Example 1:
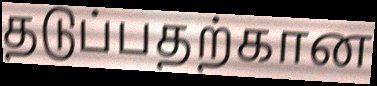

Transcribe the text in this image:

தடுப்பதற்கான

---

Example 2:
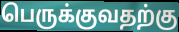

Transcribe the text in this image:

பெருக்குவதற்கு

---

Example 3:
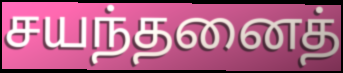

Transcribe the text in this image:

சயந்தனைத்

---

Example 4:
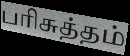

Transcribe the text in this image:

பரிசுத்தம்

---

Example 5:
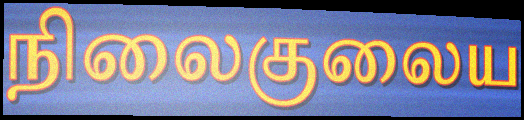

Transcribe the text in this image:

நிலைகுலைய